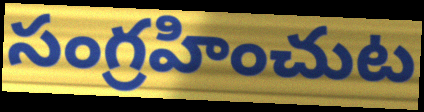
సంగ్రహించుట